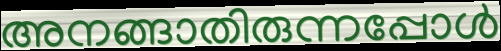
അനങ്ങാതിരുന്നപ്പോൾ